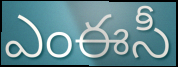
ఎంఈసీ